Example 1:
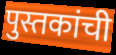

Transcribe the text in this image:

पुस्तकांची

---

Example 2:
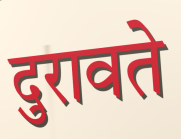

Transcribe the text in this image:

दुरावते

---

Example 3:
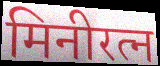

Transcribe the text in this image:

मिनीरत्न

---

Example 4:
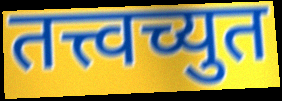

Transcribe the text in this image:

तत्त्वच्युत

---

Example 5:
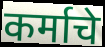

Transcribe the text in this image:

कर्माचे